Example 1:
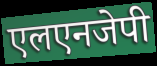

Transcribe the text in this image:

एलएनजेपी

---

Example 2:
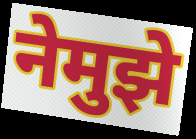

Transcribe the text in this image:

नेमुझे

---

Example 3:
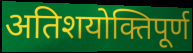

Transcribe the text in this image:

अतिशयोक्तिपूर्ण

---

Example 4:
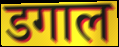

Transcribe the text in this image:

डगाल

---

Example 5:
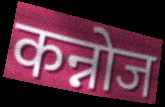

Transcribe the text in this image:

कन्नोज